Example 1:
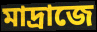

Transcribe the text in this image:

মাদ্রাজে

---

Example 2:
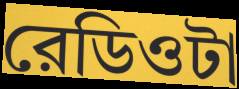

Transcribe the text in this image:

রেডিওটা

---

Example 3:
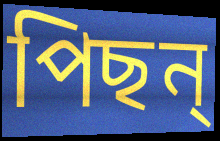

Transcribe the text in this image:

পিছন্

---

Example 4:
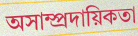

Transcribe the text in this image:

অসাম্প্রদায়িকতা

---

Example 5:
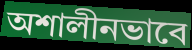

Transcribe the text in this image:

অশালীনভাবে